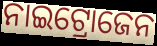
ନାଇଟ୍ରୋଜେନ